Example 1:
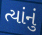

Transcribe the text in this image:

ત્યાંનું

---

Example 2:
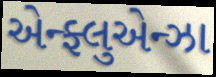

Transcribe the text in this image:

એન્ફ્લુએન્ઝા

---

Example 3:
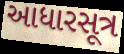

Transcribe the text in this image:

આધારસૂત્ર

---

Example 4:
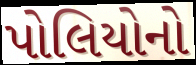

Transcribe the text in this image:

પોલિયોનો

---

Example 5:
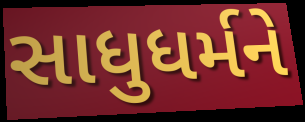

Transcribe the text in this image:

સાધુધર્મને